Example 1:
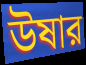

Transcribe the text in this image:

উষার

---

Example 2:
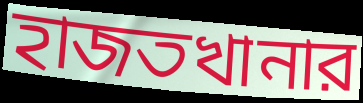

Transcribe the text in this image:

হাজতখানার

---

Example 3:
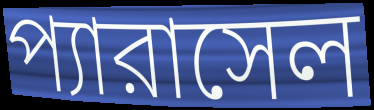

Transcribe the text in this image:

প্যারাসেল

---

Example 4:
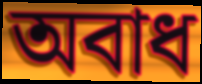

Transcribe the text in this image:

অবাধ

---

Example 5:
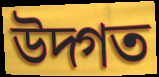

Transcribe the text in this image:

উদ্গত